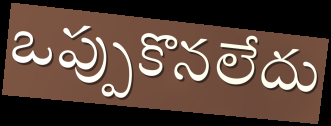
ఒప్పుకొనలేదు